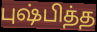
புஷ்பித்த